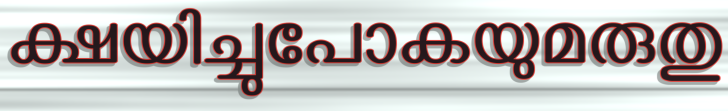
ക്ഷയിച്ചുപോകയുമരുതു